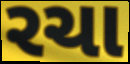
રચા